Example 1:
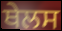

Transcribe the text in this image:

ਥੇਲਸ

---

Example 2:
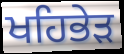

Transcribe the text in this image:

ਖਹਿਭੇੜ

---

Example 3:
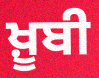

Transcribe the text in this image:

ਖ਼ੂਬੀ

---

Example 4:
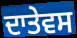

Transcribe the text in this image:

ਦਾਤੇਵਸ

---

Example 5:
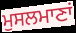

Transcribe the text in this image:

ਮੁਸਲਮਾਣਾਂ